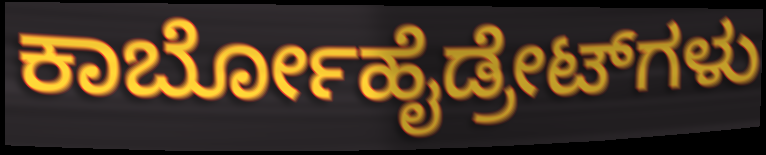
ಕಾರ್ಬೋಹೈಡ್ರೇಟ್‌ಗಳು